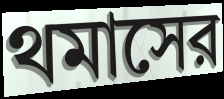
থমাসের